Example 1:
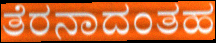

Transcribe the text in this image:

ತೆರನಾದಂತಹ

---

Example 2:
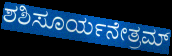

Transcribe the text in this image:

ಶಶಿಸೂರ್ಯನೇತ್ರಮ್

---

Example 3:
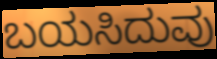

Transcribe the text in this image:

ಬಯಸಿದುವು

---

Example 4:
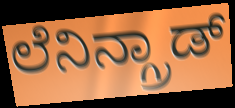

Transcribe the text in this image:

ಲೆನಿನ್ಗ್ರಾಡ್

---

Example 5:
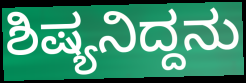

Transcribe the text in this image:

ಶಿಷ್ಯನಿದ್ದನು